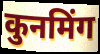
कुनमिंग